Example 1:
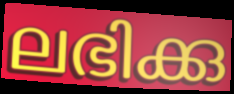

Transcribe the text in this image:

ലഭിക്കു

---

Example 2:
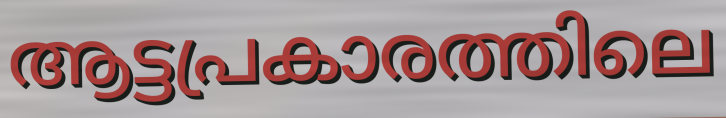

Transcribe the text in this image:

ആട്ടപ്രകാരത്തിലെ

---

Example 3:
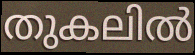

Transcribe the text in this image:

തുകലിൽ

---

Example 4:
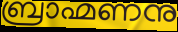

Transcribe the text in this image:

ബ്രാഹ്മണനു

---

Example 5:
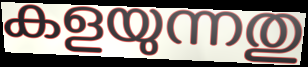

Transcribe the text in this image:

കളയുന്നതു